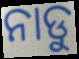
ନାଡୁ